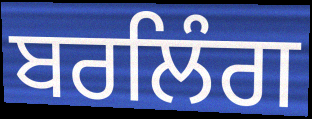
ਬਰਲਿੰਗ